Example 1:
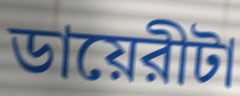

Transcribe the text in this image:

ডায়েরীটা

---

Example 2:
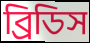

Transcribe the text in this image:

ব্রিডিস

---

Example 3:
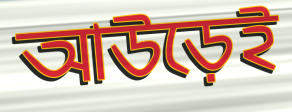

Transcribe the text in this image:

আউড়েই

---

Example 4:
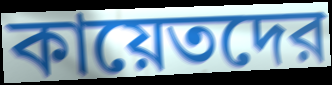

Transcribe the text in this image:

কায়েতদের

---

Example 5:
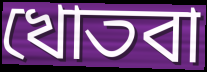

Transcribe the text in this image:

খোতবা